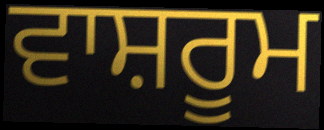
ਵਾਸ਼ਰੂਮ